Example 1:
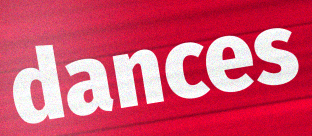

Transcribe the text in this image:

dances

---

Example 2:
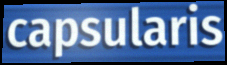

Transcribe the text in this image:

capsularis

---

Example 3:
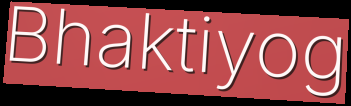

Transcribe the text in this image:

Bhaktiyog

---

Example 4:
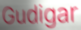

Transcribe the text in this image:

Gudigar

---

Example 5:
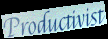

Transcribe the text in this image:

Productivist